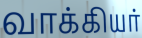
வாக்கியர்